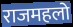
राजमहलो